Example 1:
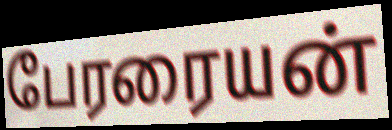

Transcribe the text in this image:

பேரரையன்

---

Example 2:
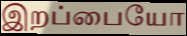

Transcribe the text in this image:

இறப்பையோ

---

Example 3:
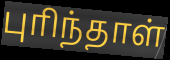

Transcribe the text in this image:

புரிந்தாள்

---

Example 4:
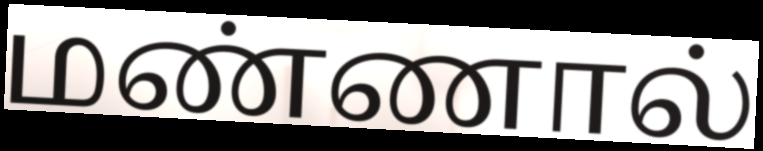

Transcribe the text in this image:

மண்ணால்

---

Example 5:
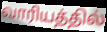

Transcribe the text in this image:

வாரியத்தில்